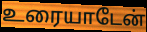
உரையாடேன்